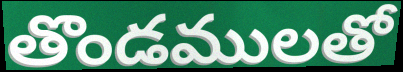
తొండములతో